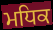
ਮਧਿਕ